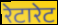
रेटारेट